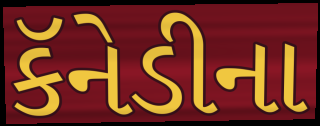
કૅનેડીના